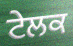
ਟੇਲਕ